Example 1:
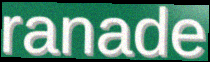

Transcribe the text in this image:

ranade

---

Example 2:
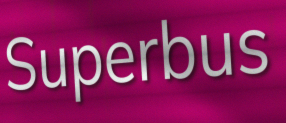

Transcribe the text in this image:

Superbus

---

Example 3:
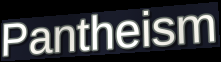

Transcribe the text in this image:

Pantheism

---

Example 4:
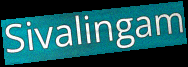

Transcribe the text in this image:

Sivalingam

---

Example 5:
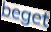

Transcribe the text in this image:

beget